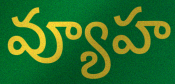
వ్యూహ